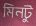
মিনটু